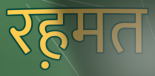
रह़मत